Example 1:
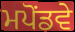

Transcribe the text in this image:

ਮਪੋਂਡਵੇ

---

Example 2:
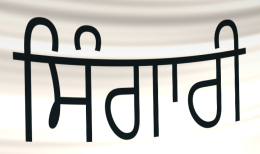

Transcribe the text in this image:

ਸਿੰਗਾਰੀ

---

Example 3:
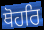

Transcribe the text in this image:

ਥੋਹਰਿ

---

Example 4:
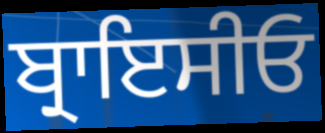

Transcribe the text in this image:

ਬ੍ਰਾਇਸੀਓ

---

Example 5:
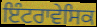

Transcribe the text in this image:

ਇੰਟਰਾਵੇਸਿਕ